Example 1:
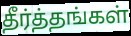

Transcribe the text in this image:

தீர்த்தங்கள்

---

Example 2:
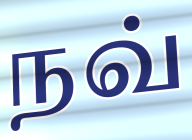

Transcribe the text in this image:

நவ்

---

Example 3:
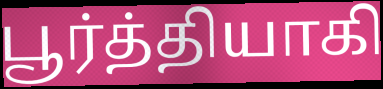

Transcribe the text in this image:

பூர்த்தியாகி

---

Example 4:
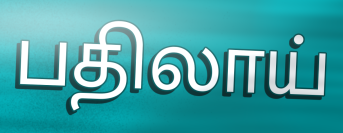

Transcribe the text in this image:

பதிலாய்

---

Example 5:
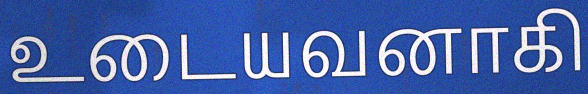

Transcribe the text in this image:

உடையவனாகி